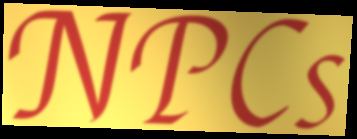
NPCs